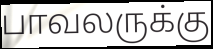
பாவலருக்கு